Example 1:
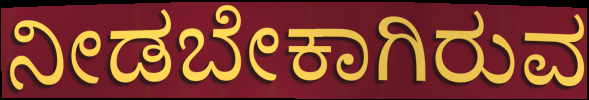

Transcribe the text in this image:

ನೀಡಬೇಕಾಗಿರುವ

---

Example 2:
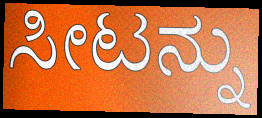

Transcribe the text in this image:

ಸೀಟನ್ನು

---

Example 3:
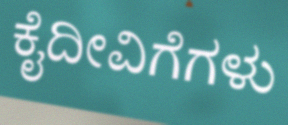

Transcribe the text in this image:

ಕೈದೀವಿಗೆಗಳು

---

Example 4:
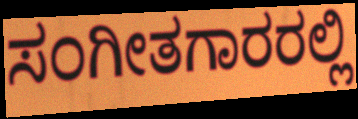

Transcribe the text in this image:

ಸಂಗೀತಗಾರರಲ್ಲಿ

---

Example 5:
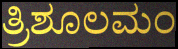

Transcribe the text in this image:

ತ್ರಿಶೂಲಮಂ